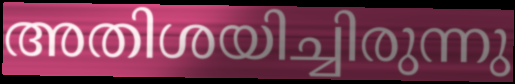
അതിശയിച്ചിരുന്നു